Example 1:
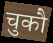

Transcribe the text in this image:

चुकौ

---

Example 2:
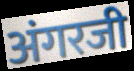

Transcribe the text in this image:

अंगरजी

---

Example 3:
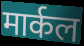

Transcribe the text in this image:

मार्कल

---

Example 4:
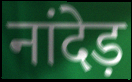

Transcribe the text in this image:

नांदेड़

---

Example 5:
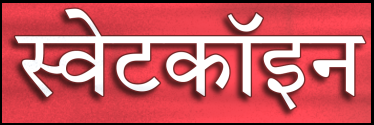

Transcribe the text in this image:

स्वेटकॉइन